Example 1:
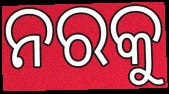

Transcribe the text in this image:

ନରକୁ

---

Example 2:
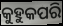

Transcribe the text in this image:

କୁହୁକପରି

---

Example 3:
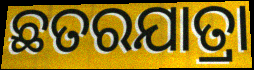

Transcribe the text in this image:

ଛତରଯାତ୍ରା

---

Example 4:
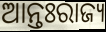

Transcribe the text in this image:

ଆନ୍ତଃରାଜ୍ୟ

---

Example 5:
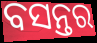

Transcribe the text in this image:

ବସନ୍ତର